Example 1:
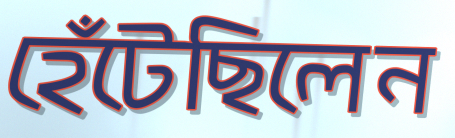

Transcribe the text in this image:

হেঁটেছিলেন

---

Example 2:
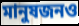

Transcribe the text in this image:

মানুষজনও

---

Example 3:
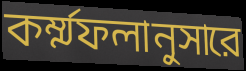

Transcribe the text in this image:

কর্ম্মফলানুসারে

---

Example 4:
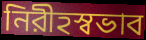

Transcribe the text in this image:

নিরীহস্বভাব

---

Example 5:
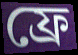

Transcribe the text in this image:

ফ্রে